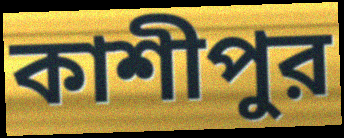
কাশীপুর